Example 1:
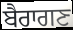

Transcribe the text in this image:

ਬੈਰਾਗਣ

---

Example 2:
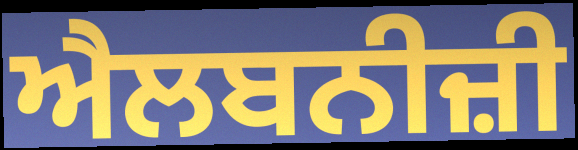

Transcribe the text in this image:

ਐਲਬਨੀਜ਼ੀ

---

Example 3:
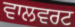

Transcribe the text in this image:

ਵਾਲਵਰਟ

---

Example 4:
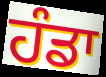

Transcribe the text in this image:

ਹੰਡਾ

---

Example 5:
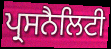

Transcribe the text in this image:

ਪ੍ਰਸਨੈਲਿਟੀ